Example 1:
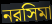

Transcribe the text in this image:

নরসিমা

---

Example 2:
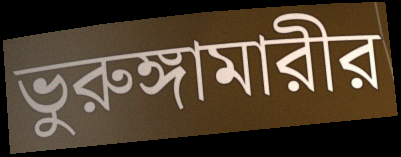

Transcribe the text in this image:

ভুরুঙ্গামারীর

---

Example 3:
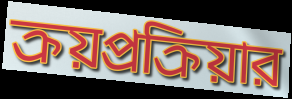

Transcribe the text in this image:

ক্রয়প্রক্রিয়ার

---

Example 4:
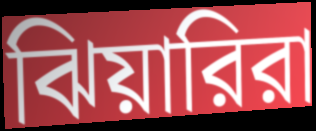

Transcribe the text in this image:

ঝিয়ারিরা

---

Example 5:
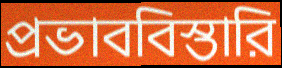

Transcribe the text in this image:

প্রভাববিস্তারি